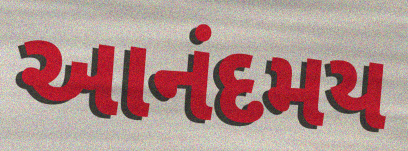
આનંદમય